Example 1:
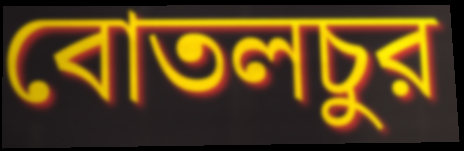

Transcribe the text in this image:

বোতলচুর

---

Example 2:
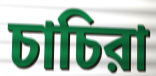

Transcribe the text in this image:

চাচিরা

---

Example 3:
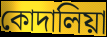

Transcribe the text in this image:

কোদালিয়া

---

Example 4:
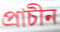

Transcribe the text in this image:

প্রাচীন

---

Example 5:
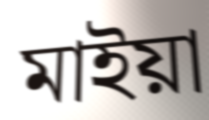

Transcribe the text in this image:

মাইয়া